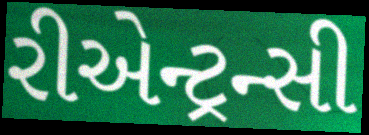
રીએન્ટ્રન્સી